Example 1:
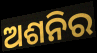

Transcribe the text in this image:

ଅଶନିର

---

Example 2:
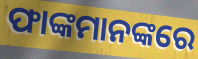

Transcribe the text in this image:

ଫାଙ୍କମାନଙ୍କରେ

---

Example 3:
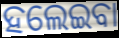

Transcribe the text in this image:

ହଲେଇବା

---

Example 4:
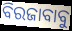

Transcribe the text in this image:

ବିରଜାବାବୁ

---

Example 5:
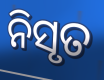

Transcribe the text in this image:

ନିସୃତ